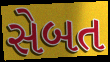
સેબત